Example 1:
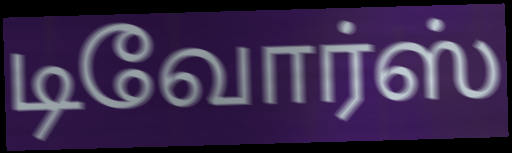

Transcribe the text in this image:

டிவோர்ஸ்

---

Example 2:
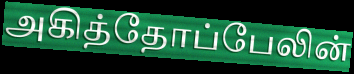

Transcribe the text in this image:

அகித்தோப்பேலின்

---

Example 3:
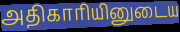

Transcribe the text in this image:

அதிகாரியினுடைய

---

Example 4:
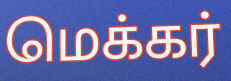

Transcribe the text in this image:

மெக்கர்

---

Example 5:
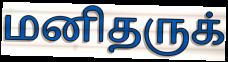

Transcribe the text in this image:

மனிதருக்